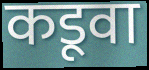
कडूवा